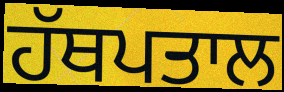
ਹੱਥਪਤਾਲ